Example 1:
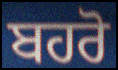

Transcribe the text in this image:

ਬਹਰੋ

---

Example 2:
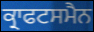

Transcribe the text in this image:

ਕ੍ਰਾਫਟਸਮੈਨ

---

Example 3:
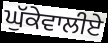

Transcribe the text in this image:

ਘੁੱਕੇਵਾਲੀਏ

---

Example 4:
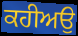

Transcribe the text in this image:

ਕਹੀਅਉ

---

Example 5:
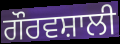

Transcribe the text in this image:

ਗੌਰਵਸ਼ਾਲੀ